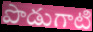
పొడుగాటి